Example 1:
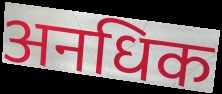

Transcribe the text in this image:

अनधिक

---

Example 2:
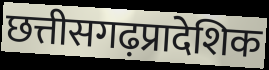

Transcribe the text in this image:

छत्तीसगढ़प्रादेशिक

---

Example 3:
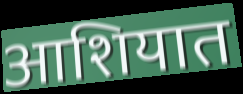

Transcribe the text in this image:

आशियात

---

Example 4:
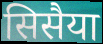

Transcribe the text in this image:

सिसैया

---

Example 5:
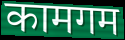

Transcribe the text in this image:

कामगम